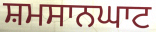
ਸ਼ਮਸਾਨਘਾਟ